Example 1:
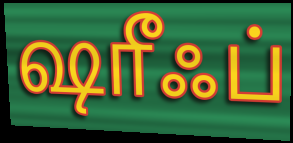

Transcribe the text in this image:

ஷரீஃப்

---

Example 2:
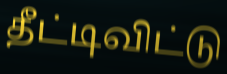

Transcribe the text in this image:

தீட்டிவிட்டு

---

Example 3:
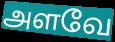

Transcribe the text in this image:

அளவே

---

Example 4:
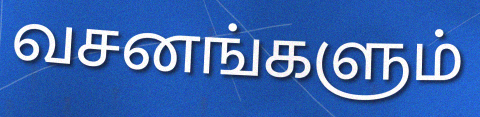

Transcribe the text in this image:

வசனங்களும்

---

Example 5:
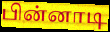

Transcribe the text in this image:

பின்னாடி